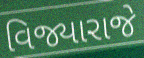
વિજ્યારાજે